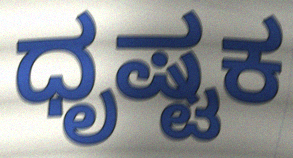
ಧೃಷ್ಟಕ